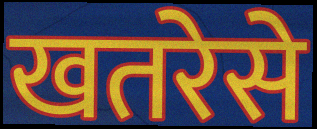
खतरेसे